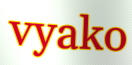
vyako